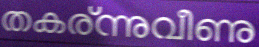
തകര്ന്നുവീണു